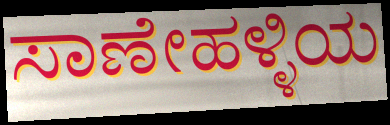
ಸಾಣೇಹಳ್ಳಿಯ